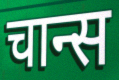
चान्स